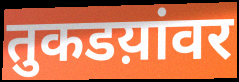
तुकडय़ांवर